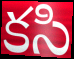
కసి